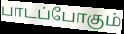
பாடப்போகும்